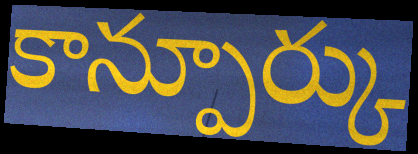
కాన్పూర్కు